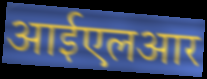
आईएलआर